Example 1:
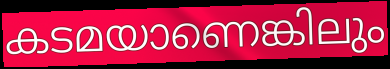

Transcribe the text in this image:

കടമയാണെങ്കിലും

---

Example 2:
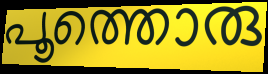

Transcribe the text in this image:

പൂത്തൊരു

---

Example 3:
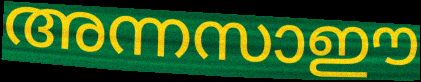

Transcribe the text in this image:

അന്നസാഈ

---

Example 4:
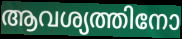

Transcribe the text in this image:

ആവശ്യത്തിനോ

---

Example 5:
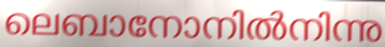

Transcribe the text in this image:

ലെബാനോനിൽനിന്നു